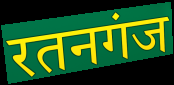
रतनगंज